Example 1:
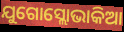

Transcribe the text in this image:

ଯୁଗୋସ୍ଲୋଭାକିଆ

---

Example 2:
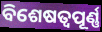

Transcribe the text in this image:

ବିଶେଷତ୍ୱପୂର୍ଣ୍ଣ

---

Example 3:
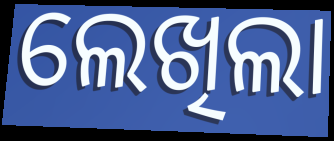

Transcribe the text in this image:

ଲେଖିଲା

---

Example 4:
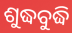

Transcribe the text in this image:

ଶୁଦ୍ଧବୁଦ୍ଧି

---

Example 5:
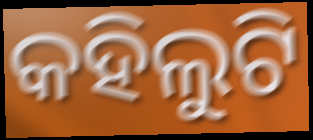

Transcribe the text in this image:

କହିଲୁଟି